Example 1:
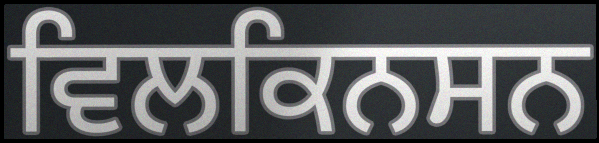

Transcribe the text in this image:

ਵਿਲਕਿਨਸਨ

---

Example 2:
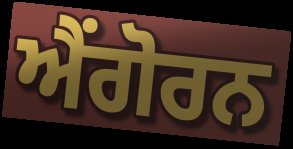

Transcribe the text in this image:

ਐਂਗੋਰਨ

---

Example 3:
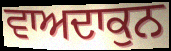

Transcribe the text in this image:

ਵਾਅਦਾਕੁਨ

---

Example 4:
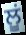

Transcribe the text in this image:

ਲੂਂ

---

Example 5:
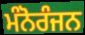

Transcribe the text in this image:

ਮੰਨੋਰੰਜਨ